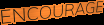
ENCOURAGE